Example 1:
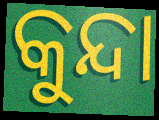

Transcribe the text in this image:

କୁନ୍ଦା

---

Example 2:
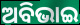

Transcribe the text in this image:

ଅବିଭାଇ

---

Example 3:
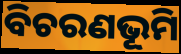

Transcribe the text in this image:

ବିଚରଣଭୂମି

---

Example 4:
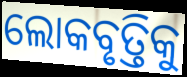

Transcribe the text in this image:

ଲୋକବୃତ୍ତିକୁ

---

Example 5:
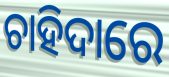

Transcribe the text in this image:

ଚାହିଦାରେ